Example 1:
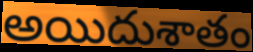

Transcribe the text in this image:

అయిదుశాతం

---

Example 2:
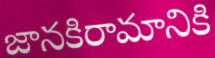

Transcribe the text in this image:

జానకిరామానికి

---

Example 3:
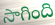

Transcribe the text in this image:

సాగింది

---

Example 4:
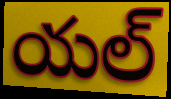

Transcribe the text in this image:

యల్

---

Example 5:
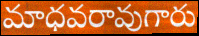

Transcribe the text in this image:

మాధవరావుగారు